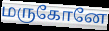
மருகோனே